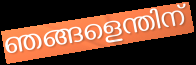
ഞങ്ങളെന്തിന്